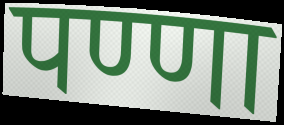
पण्णा